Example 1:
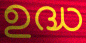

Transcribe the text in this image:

ഉദ്ധ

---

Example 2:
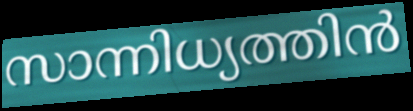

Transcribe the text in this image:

സാന്നിധ്യത്തിൻ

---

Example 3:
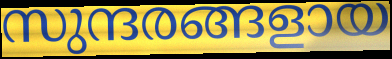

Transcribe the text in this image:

സുന്ദരങ്ങളായ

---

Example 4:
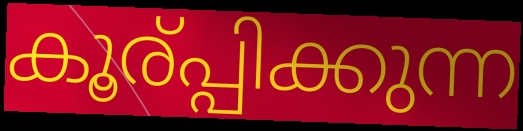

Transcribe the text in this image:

കൂര്പ്പിക്കുന്ന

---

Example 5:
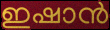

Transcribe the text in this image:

ഇഷാൻ